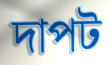
দাপট